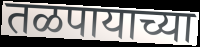
तळपायाच्या